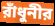
রাঁধুনীর